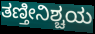
ತಣ್ತೀನಿಶ್ಚಯ